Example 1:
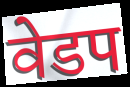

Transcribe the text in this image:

वेडप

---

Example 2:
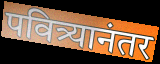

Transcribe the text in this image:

पवित्र्यानंतर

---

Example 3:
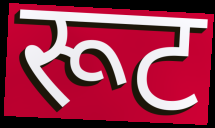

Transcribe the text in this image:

रूट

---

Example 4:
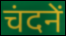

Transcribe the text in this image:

चंदनें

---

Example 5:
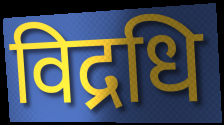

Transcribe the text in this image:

विद्रधि